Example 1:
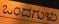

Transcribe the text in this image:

ಒಂದಗುಳು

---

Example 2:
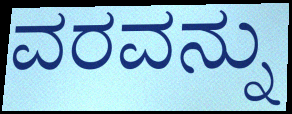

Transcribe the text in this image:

ವರವನ್ನು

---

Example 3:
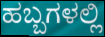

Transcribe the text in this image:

ಹಬ್ಬಗಳಲ್ಲಿ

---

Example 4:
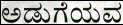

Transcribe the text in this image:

ಅಡುಗೆಯವ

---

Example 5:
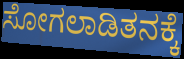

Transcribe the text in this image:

ಸೋಗಲಾಡಿತನಕ್ಕೆ